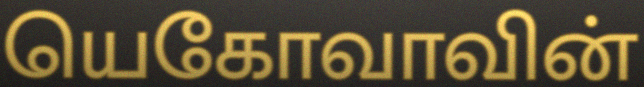
யெகோவாவின்